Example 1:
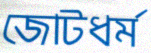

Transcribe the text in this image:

জোটধর্ম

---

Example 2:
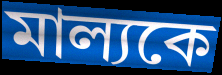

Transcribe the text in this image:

মাল্যকে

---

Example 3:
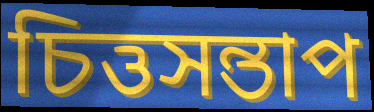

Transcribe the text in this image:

চিত্তসন্তাপ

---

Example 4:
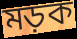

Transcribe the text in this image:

মড়ক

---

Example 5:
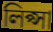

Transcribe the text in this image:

লিপ্সা